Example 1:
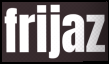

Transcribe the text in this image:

frijaz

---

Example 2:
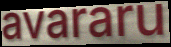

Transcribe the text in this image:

avararu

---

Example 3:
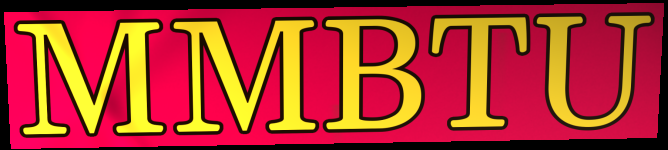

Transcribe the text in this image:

MMBTU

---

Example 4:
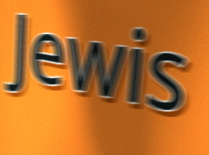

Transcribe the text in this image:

Jewis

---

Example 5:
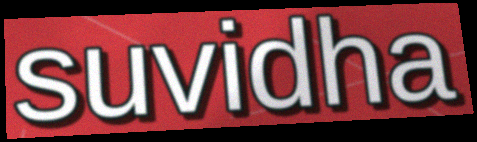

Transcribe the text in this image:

suvidha